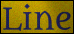
Line